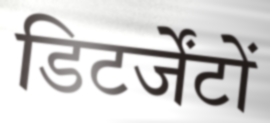
डिटर्जेंटों